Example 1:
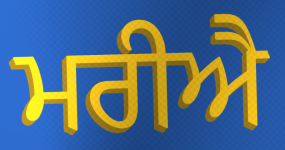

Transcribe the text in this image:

ਮਰੀਐ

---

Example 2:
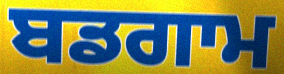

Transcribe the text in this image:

ਬਡਗਾਮ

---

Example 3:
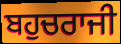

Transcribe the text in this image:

ਬਹੁਚਰਾਜੀ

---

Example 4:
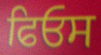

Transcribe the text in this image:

ਫਿਓਸ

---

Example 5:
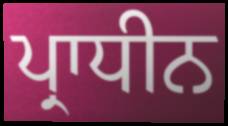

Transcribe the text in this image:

ਪ੍ਰਾਧੀਨ